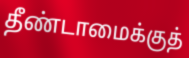
தீண்டாமைக்குத்